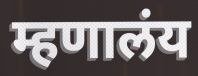
म्हणालंय